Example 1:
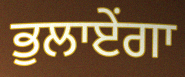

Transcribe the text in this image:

ਭੁਲਾਏਂਗਾ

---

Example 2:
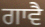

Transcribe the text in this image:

ਗਾਵੈ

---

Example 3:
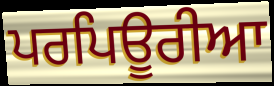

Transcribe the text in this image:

ਪਰਪਿਊਰੀਆ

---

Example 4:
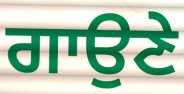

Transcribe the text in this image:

ਗਾਉਣੇ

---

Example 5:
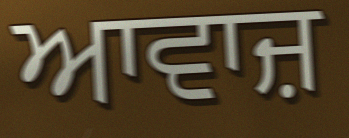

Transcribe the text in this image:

ਆਵਾਜ਼